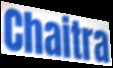
Chaitra